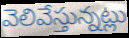
వెలివేస్తున్నట్లు